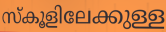
സ്കൂളിലേക്കുള്ള